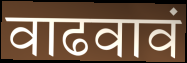
वाढवावं